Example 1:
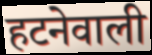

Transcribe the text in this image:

हटनेवाली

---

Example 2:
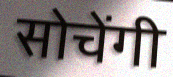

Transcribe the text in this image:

सोचेंगी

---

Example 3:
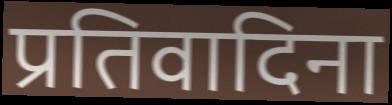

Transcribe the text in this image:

प्रतिवादिना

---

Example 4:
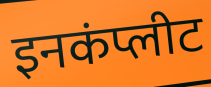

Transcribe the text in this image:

इनकंप्लीट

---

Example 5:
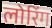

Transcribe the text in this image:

लोरिंग